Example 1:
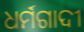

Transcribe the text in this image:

ଧର୍ମଗାଦୀ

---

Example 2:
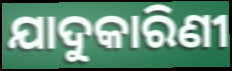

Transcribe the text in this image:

ଯାଦୁକାରିଣୀ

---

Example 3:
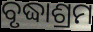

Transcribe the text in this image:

ବୃଦ୍ଧାଶ୍ରମ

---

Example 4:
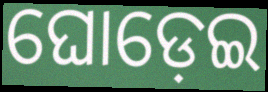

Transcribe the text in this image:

ଘୋଡ଼େଇ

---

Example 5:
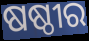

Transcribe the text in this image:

ଷଷ୍ଠୀର